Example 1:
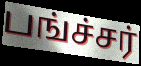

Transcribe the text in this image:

பங்ச்சர்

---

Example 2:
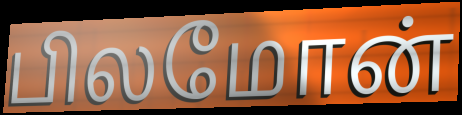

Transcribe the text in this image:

பிலமோன்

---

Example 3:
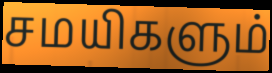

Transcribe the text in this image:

சமயிகளும்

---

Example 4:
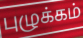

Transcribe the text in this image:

புழுக்கம்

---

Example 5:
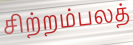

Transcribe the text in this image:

சிற்றம்பலத்